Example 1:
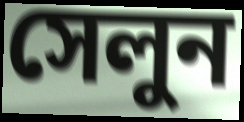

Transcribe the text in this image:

সেলুন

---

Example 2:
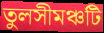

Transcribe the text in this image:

তুলসীমঞ্চটি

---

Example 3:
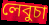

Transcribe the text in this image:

লেবুচা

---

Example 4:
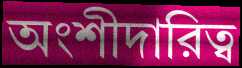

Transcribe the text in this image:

অংশীদারিত্ব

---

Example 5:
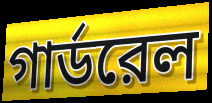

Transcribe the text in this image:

গার্ডরেল